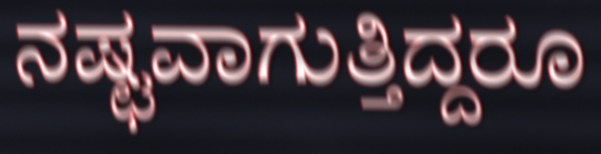
ನಷ್ಟವಾಗುತ್ತಿದ್ದರೂ